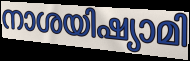
നാശയിഷ്യാമി